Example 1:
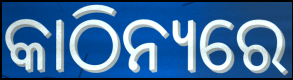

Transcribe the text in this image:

କାଠିନ୍ୟରେ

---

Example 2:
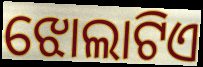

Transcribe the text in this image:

ଝୋଲାଟିଏ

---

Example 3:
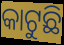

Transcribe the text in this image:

କାଟୁଛି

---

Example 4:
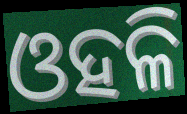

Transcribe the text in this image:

ଓହଳି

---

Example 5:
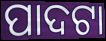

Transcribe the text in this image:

ପାଦଟା